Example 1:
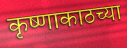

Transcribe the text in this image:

कृष्णाकाठच्या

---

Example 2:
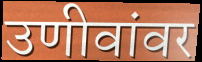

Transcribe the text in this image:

उणीवांवर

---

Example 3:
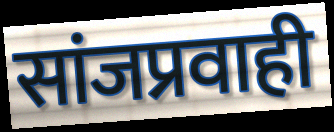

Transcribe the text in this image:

सांजप्रवाही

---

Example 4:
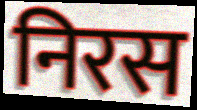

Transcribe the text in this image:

निरस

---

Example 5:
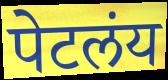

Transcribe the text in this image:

पेटलंय